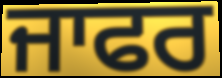
ਜਾਫਰ